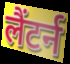
लैंटर्न